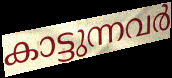
കാട്ടുന്നവർ